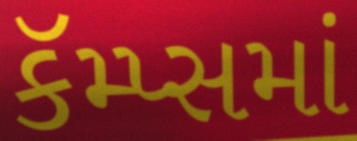
કૅમ્પ્સમાં